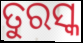
ତୁରସ୍କ